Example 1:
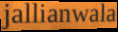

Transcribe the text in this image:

jallianwala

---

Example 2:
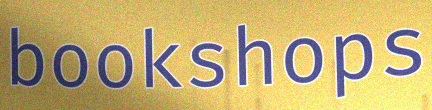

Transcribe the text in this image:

bookshops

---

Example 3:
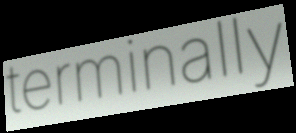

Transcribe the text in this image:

terminally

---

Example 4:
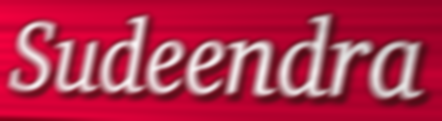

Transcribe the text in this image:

Sudeendra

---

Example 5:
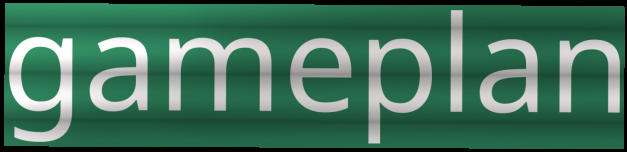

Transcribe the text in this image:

gameplan